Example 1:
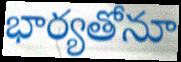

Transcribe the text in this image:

భార్యతోనూ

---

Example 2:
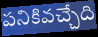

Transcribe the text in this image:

పనికివచ్చేది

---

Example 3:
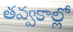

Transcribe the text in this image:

తవ్వకాల్లో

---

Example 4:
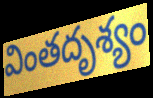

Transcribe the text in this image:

వింతదృశ్యం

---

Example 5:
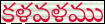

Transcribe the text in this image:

కళవళము